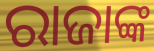
ରାଜାଙ୍କ